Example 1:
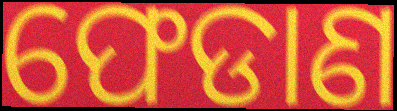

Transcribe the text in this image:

ଫେଡାଣ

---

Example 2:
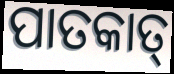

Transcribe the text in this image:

ପାତକାତ୍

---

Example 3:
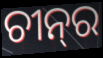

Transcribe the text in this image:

ଚୀନ୍‌ର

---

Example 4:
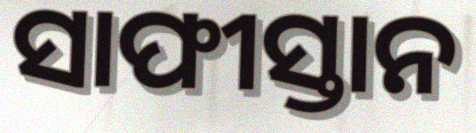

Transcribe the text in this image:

ସାଫୀସ୍ତାନ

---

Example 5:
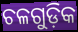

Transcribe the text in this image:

ଚଳଗୁଡ଼ିକ